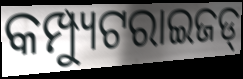
କମ୍ପ୍ୟୁଟରାଇଜଡ୍